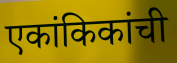
एकांकिकांची